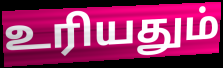
உரியதும்